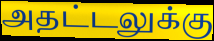
அதட்டலுக்கு